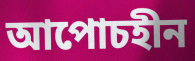
আপোচহীন